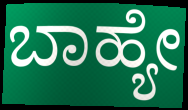
ಬಾಹ್ಯೇ